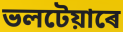
ভলটেয়াৰে